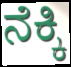
ನೆಕ್ಕಿ